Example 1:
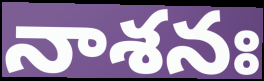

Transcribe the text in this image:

నాశనః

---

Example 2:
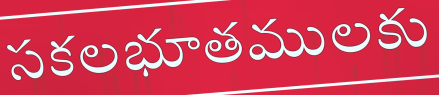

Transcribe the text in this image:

సకలభూతములకు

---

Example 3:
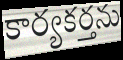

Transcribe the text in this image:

కార్యకర్తను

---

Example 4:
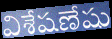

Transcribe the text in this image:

విశేషణేషు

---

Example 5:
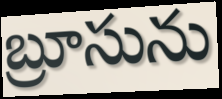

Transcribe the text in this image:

బ్రూసును